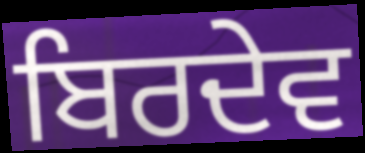
ਬਿਰਦੇਵ